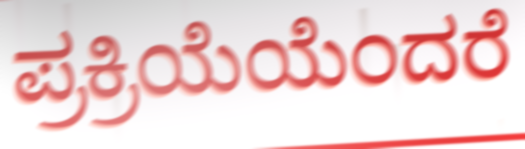
ಪ್ರಕ್ರಿಯೆಯೆಂದರೆ